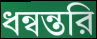
ধন্বন্তরি